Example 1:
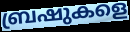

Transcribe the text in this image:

ബ്രഷുകളെ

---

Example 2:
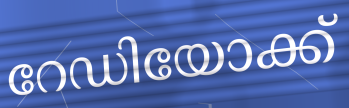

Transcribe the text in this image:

റേഡിയോക്ക്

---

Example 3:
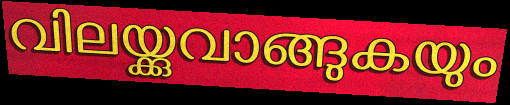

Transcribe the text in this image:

വിലയ്ക്കുവാങ്ങുകയും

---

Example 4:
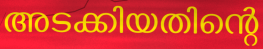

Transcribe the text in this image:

അടക്കിയതിന്റെ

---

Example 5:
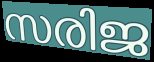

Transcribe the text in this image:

സരിജ